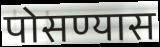
पोसण्यास